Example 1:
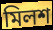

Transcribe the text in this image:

মিলশ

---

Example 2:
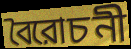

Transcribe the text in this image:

বৈরোচনী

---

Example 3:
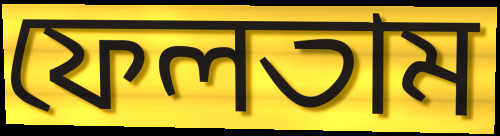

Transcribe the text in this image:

ফেলতাম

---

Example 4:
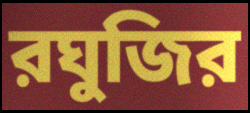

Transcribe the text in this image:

রঘুজির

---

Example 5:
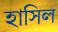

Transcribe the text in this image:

হাসিল